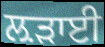
ਲ਼ੜਾਈ